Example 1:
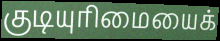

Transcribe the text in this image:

குடியுரிமையைக்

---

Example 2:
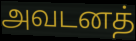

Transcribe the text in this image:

அவடனத்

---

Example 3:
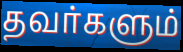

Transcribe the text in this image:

தவர்களும்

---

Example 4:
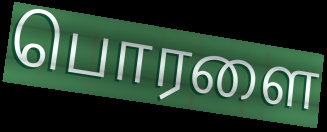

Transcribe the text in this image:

பொரளை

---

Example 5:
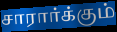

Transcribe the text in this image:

சாரார்க்கும்